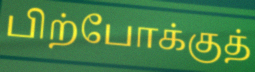
பிற்போக்குத்